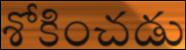
శోకించడు